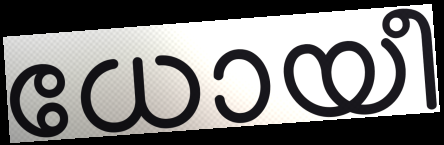
ധോയീ